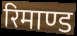
रिमाण्ड